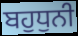
ਬਹੁਧੁਨੀ